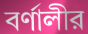
বর্ণালীর